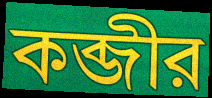
কব্জীর